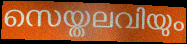
സെയ്തലവിയും